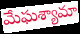
మేఘశ్యామా